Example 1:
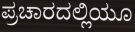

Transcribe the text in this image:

ಪ್ರಚಾರದಲ್ಲಿಯೂ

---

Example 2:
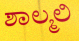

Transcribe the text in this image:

ಶಾಲ್ಮಲಿ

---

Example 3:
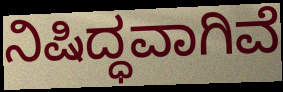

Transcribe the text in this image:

ನಿಷಿದ್ಧವಾಗಿವೆ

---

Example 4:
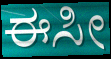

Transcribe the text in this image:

ಈಸೀ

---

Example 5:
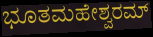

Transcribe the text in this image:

ಭೂತಮಹೇಶ್ವರಮ್